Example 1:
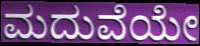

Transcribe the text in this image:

ಮದುವೆಯೇ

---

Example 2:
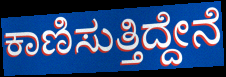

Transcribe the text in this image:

ಕಾಣಿಸುತ್ತಿದ್ದೇನೆ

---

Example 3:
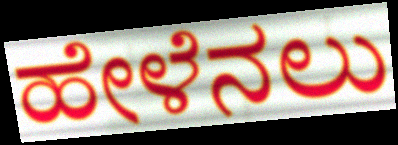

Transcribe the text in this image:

ಹೇಳೆನಲು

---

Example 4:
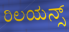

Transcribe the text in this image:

ರಿಲಯನ್ಸ್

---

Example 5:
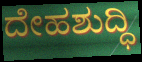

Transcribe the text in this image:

ದೇಹಶುದ್ಧಿ